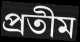
প্ৰতীম